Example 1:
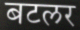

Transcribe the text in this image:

बटलर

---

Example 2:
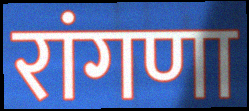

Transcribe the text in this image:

रांगणा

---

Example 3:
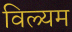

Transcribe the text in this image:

विल्यम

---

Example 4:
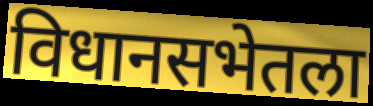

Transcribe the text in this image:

विधानसभेतला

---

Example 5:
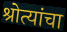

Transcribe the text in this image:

श्रोत्यांचा